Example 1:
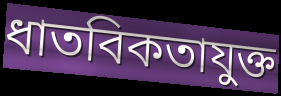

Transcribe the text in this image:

ধাতবিকতাযুক্ত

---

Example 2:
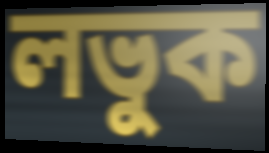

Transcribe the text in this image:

লভুক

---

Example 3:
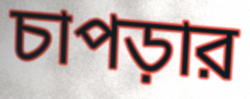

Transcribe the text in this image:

চাপড়ার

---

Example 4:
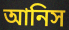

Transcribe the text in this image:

আনিস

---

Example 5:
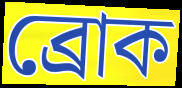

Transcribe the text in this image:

ব্রোক